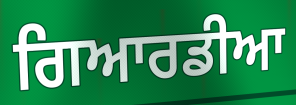
ਗਿਆਰਡੀਆ